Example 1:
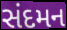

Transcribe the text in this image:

સંદમન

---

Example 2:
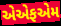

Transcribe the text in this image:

એએફએમ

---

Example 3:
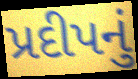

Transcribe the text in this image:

પ્રદીપનું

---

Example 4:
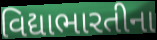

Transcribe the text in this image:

વિદ્યાભારતીના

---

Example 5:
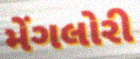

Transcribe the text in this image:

મેંગલોરી